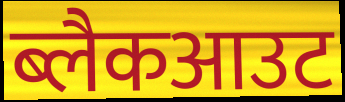
ब्लैकआउट